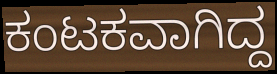
ಕಂಟಕವಾಗಿದ್ದ